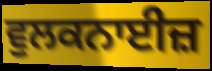
ਵੁਲਕਨਾਈਜ਼